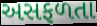
અસફળતા